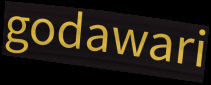
godawari